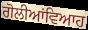
ਗੋਲੀਆਂਵਿਆਹ